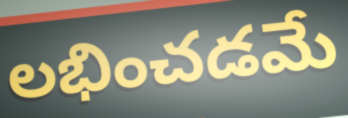
లభించడమే